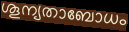
ശൂന്യതാബോധം